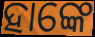
ହାଙ୍କେ